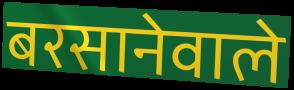
बरसानेवाले